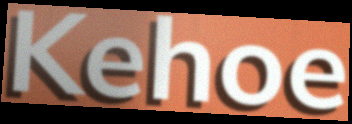
Kehoe